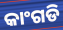
କାଂଗଡି